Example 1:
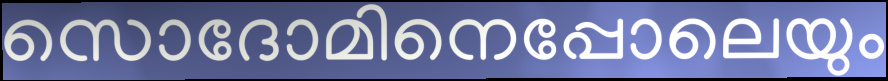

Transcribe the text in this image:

സൊദോമിനെപ്പോലെയും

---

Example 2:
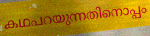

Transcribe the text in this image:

കഥപറയുന്നതിനൊപ്പം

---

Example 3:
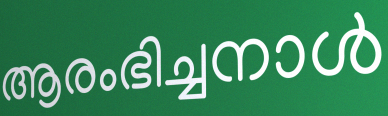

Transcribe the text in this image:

ആരംഭിച്ചനാൾ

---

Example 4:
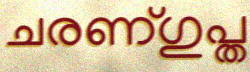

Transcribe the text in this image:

ചരണ്ഗുപ്ത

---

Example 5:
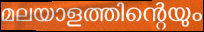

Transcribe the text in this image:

മലയാളത്തിന്റെയും